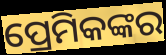
ପ୍ରେମିକଙ୍କର